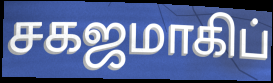
சகஜமாகிப்